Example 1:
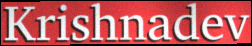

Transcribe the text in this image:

Krishnadev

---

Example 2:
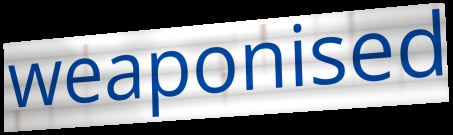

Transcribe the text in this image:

weaponised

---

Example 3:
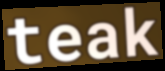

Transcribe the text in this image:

teak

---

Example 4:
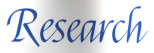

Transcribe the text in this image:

Research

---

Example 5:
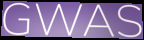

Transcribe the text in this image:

GWAS